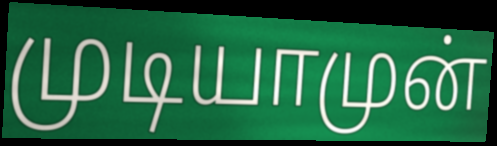
முடியாமுன்